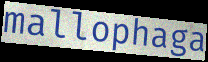
mallophaga